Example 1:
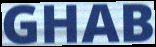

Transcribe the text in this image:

GHAB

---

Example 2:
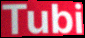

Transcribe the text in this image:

Tubi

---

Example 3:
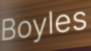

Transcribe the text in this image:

Boyles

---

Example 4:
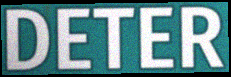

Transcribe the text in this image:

DETER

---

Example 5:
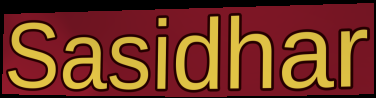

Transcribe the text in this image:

Sasidhar